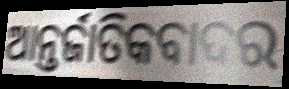
ଆନ୍ତର୍ଜାତିକବାଦର